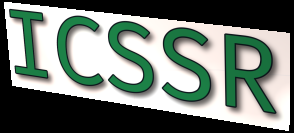
ICSSR